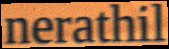
nerathil